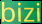
bizi